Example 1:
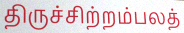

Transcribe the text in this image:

திருச்சிற்றம்பலத்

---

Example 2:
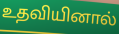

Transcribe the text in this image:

உதவியினால்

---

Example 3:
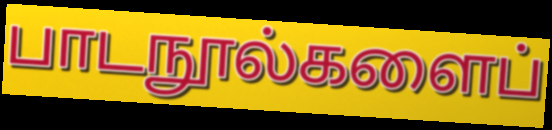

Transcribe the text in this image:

பாடநூல்களைப்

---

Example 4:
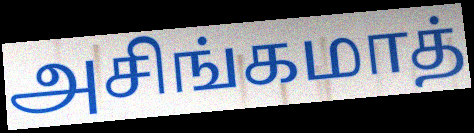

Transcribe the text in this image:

அசிங்கமாத்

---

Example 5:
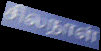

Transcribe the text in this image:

சிலநாள்